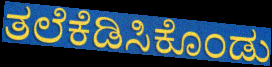
ತಲೆಕೆಡಿಸಿಕೊಂಡು